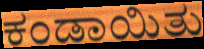
ಕಂಡಾಯಿತು